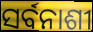
ସର୍ବନାଶୀ